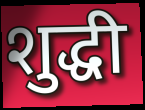
शुद्धी